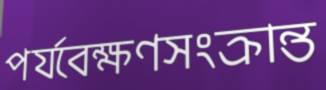
পর্যবেক্ষণসংক্রান্ত